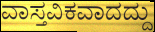
ವಾಸ್ತವಿಕವಾದದ್ದು